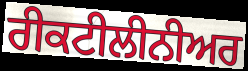
ਰੀਕਟੀਲੀਨੀਅਰ